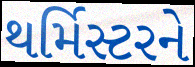
થર્મિસ્ટરને